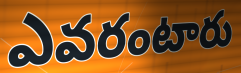
ఎవరంటారు